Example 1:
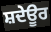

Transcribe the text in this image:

ਸ਼ਦੇਊਰ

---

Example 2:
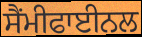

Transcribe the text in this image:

ਸੈਂਮੀਫਾਈਨਲ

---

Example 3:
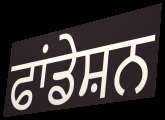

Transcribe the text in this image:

ਫਾਂਡੇਸ਼ਨ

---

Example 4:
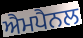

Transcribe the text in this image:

ਐਮਪੈਨਲ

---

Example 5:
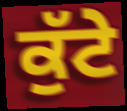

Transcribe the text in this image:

ਕੁੱਟੇ